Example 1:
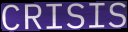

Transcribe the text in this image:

CRISIS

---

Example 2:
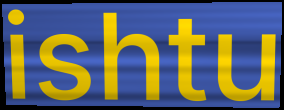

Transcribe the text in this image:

ishtu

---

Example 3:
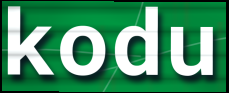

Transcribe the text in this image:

kodu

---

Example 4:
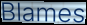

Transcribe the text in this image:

Blames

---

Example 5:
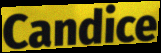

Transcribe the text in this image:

Candice